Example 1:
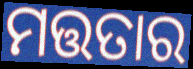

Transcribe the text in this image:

ମତ୍ତତାର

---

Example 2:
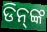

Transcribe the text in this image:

ଡିନ୍‌ଙ୍କ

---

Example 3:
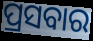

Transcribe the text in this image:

ପ୍ରସବାର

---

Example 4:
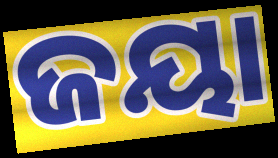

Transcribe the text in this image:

ଜୟା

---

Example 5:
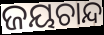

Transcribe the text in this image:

ଜୟଚାନ୍ଦ